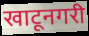
खाटूनगरी